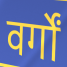
वर्गों